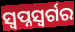
ସ୍ୱପ୍ନସ୍ୱର୍ଗର